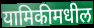
यामिकीमधील